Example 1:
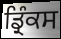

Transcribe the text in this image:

ਡ੍ਰਿੰਕਸ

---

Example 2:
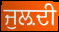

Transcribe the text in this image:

ਜੁਲ਼ਦੀ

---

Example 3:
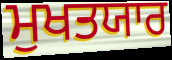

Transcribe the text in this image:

ਮੁਖਤਯਾਰ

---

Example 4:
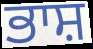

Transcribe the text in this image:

ਭਾਸ਼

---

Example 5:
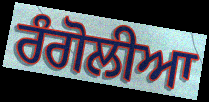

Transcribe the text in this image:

ਰੰਗੋਲੀਆ